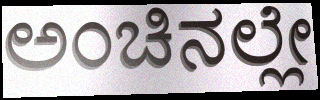
ಅಂಚಿನಲ್ಲೇ